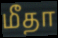
மீதா